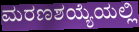
ಮರಣಶಯ್ಯೆಯಲ್ಲಿ